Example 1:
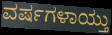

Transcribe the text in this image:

ವರ್ಷಗಳಾಯ್ತು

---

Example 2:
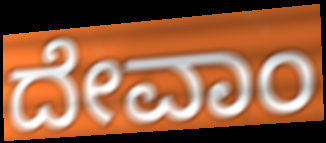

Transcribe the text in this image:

ದೇವಾಂ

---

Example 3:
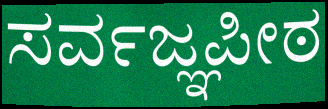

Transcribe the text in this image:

ಸರ್ವಜ್ಞಪೀಠ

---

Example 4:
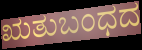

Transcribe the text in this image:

ಋತುಬಂಧದ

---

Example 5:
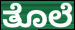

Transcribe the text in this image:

ತೊಲೆ